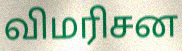
விமரிசன